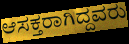
ಆಸಕ್ತರಾಗಿದ್ದವರು